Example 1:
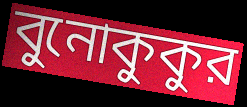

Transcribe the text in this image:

বুনোকুকুর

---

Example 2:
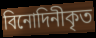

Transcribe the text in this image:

বিনোদিনীকৃত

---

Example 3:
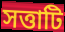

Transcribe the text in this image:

সত্তাটি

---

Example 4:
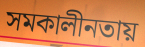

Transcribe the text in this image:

সমকালীনতায়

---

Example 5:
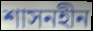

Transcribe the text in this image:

শাসনহীন